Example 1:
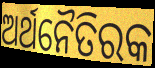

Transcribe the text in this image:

ଅର୍ଥନୈତିରକ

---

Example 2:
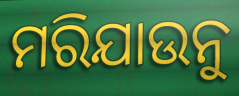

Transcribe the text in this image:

ମରିଯାଉନୁ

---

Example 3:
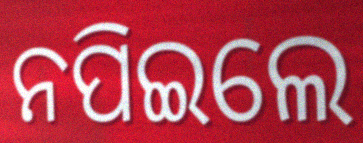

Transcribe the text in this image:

ନପିଇଲେ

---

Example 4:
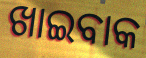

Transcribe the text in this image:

ଖାଇବାକ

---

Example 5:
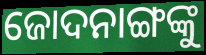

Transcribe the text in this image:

ଜୋଦନାଙ୍ଗଙ୍କୁ